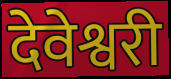
देवेश्वरी